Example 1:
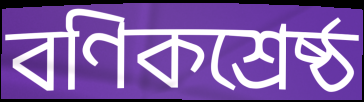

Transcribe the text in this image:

বণিকশ্রেষ্ঠ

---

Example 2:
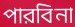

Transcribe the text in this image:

পারবিনা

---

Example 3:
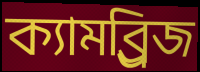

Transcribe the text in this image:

ক্যামব্র্রিজ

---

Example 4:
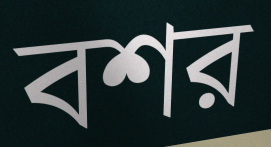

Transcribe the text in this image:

বশর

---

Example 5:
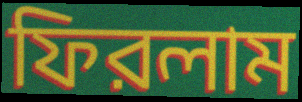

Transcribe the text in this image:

ফিরলাম